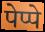
पेप्पे